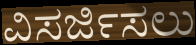
ವಿಸರ್ಜಿಸಲು